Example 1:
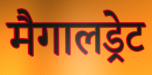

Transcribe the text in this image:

मैगालड्रेट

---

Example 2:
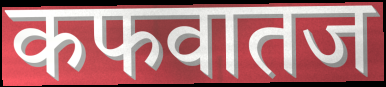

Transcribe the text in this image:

कफवातज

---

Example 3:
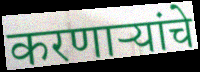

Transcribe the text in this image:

करणाऱ्यांचे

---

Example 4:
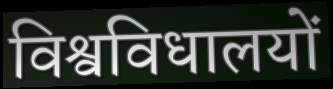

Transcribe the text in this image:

विश्वविधालयों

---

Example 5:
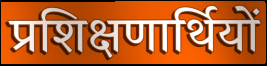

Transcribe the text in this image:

प्रशिक्षणार्थियों